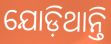
ଯୋଡ଼ିଥାନ୍ତି